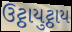
ઉટ્ઠાયુટ્ઠાય